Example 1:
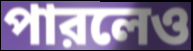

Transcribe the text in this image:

পারলেও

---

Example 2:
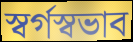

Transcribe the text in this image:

স্বর্গস্বভাব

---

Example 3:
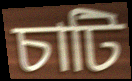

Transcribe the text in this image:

চাটি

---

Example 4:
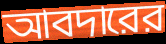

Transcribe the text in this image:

আবদারের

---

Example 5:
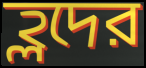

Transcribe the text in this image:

হ্লদের